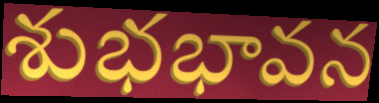
శుభభావన